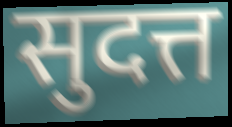
सुदत्त